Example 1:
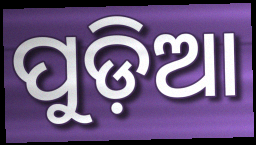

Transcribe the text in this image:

ପୁଡ଼ିଆ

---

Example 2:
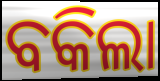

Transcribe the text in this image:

ବକିଲା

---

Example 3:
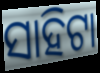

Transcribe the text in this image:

ସାହିଟା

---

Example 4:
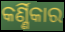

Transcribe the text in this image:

କର୍ଣ୍ଣିକାର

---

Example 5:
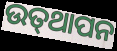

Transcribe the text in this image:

ଉତ୍‌ଥାପନ